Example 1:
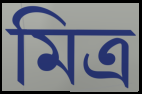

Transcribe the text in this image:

মিত্ৰ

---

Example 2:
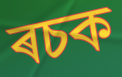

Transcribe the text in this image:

ৰচক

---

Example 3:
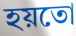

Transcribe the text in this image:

হয়তো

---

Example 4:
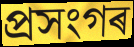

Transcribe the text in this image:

প্ৰসংগৰ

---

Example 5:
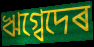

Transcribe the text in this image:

ঋগ্বেদেৰ